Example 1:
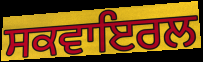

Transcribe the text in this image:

ਸਕਵਾਇਰਲ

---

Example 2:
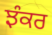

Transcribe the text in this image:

ਝੰਕਰ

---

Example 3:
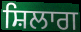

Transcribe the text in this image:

ਸ਼ਿਲਾਗ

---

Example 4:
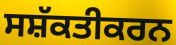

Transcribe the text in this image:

ਸਸ਼ੱਕਤੀਕਰਨ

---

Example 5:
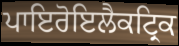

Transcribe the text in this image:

ਪਾਇਰੋਇਲੈਕਟ੍ਰਿਕ